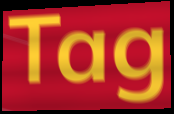
Tag